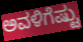
ಅವಳಿಗೆಷ್ಟು